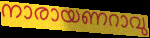
നാരായണറാവു